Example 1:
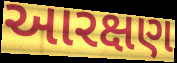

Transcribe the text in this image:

આરક્ષણ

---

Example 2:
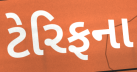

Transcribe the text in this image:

ટેરિફના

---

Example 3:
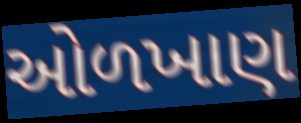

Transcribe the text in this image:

ઓળખાણ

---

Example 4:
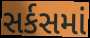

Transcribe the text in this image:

સર્કસમાં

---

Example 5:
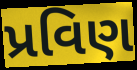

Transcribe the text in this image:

પ્રવિણ